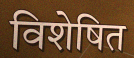
विशेषित